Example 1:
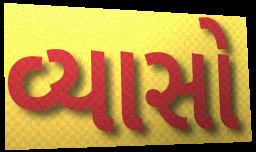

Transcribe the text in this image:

વ્યાસો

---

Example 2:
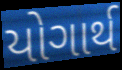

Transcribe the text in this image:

યોગાર્થ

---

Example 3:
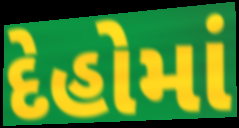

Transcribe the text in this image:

દેહોમાં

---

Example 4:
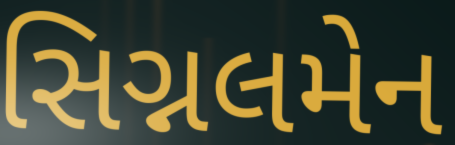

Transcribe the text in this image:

સિગ્નલમેન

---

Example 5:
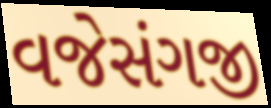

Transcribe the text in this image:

વજેસંગજી